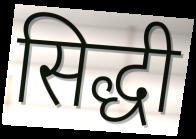
सिद्धी